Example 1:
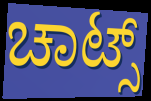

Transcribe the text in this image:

ಚಾಟ್ಸ್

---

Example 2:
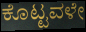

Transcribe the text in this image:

ಕೊಟ್ಟವಳೇ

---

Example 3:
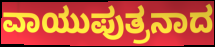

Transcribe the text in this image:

ವಾಯುಪುತ್ರನಾದ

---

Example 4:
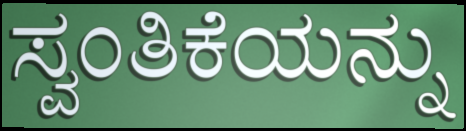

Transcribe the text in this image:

ಸ್ವಂತಿಕೆಯನ್ನು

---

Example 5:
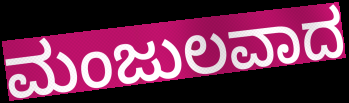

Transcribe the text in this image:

ಮಂಜುಲವಾದ